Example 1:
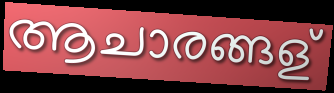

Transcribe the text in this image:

ആചാരങ്ങള്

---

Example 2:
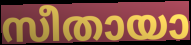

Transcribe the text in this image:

സീതായാ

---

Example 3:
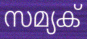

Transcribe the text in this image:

സമ്യക്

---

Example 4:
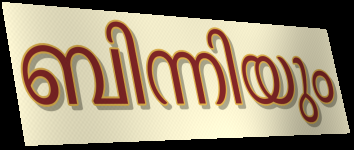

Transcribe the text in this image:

ബിന്നിയും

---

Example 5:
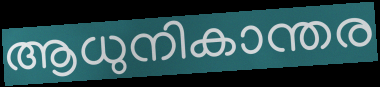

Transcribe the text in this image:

ആധുനികാന്തര